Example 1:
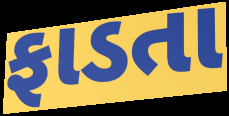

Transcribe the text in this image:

ફાડતા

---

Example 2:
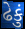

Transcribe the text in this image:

ઢેકું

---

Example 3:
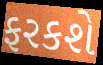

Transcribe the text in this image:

ફરકશે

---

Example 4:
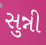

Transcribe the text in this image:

સુન્ની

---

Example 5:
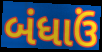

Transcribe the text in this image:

બંધાઉં